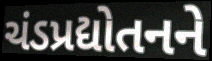
ચંડપ્રદ્યોતનને